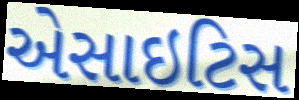
એસાઇટિસ